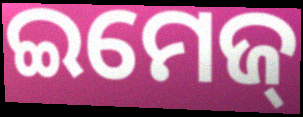
ଇମେଜ୍